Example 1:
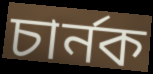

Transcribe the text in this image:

চার্নক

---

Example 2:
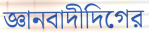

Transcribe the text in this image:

জ্ঞানবাদীদিগের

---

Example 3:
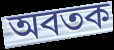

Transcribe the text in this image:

অবতক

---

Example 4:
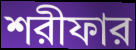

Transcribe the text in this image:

শরীফার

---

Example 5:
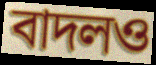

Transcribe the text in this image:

বাদলও